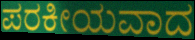
ಪರಕೀಯವಾದ